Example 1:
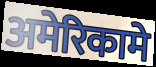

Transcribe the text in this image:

अमेरिकामे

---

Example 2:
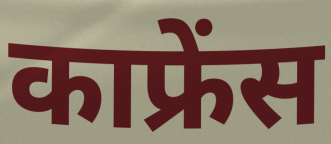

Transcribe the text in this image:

काफ्रेंस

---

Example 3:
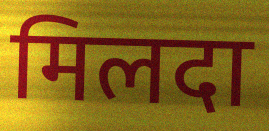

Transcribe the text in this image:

मिलदा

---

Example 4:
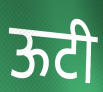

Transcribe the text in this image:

ऊटी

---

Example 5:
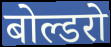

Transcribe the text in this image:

बोल्डरो